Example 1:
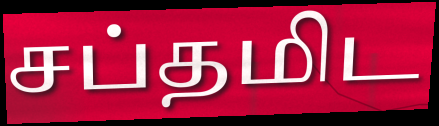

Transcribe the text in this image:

சப்தமிட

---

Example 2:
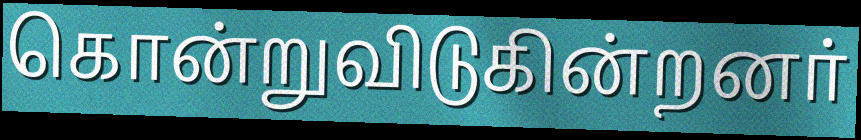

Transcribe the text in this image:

கொன்றுவிடுகின்றனர்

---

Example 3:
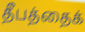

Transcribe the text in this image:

தீபத்தைக்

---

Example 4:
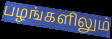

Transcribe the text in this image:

பழங்களிலும்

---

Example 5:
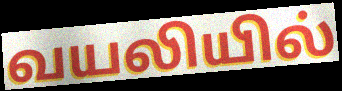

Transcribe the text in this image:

வயலியில்